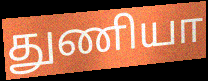
துணியா